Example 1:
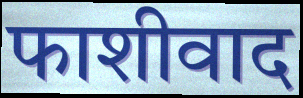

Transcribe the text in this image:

फाशीवाद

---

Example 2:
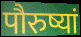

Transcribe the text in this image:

पौरुष्यां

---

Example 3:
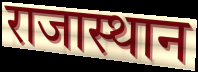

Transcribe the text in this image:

राजास्थान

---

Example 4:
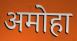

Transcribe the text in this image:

अमोहा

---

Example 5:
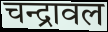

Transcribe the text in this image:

चन्द्रावल